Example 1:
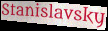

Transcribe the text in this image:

Stanislavsky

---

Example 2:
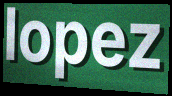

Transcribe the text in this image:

lopez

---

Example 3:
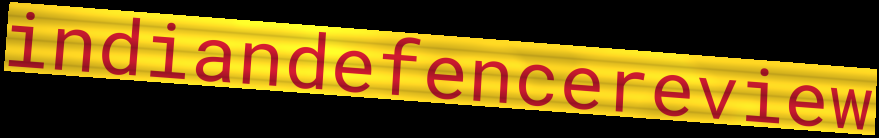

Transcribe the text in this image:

indiandefencereview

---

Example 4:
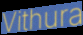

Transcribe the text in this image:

Vithura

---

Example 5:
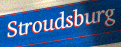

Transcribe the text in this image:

Stroudsburg